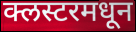
क्लस्टरमधून